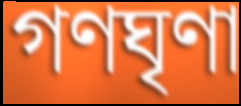
গণঘৃণা